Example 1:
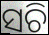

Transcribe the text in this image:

ସଚି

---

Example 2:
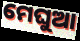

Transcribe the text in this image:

ମେଘୁଆ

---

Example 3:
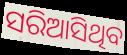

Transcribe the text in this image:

ସରିଆସିଥିବ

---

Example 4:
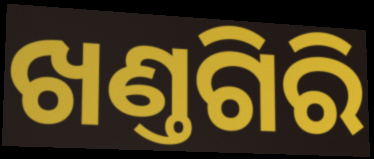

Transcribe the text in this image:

ଖଣ୍ତଗିରି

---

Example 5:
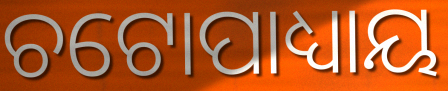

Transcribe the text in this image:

ଚଟୋପାଧ୍ୟାୟ